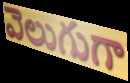
వెలుగుగా